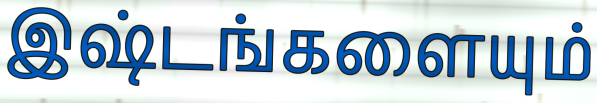
இஷ்டங்களையும்